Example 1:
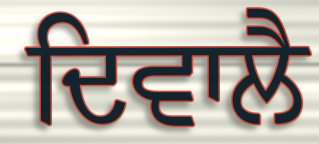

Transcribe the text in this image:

ਦਿਵਾਲੈ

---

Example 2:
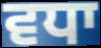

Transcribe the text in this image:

ਵਧਾ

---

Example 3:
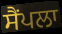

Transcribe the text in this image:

ਸੈਂਪਲਾ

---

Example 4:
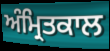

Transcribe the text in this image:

ਅੰਮ੍ਰਿਤਕਾਲ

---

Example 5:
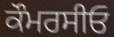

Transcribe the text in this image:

ਕੌਮਰਸੀਓ